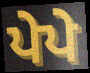
ਪੇਪੇ